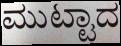
ಮುಟ್ಟಾದ